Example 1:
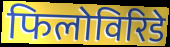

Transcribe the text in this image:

फिलोविरिडे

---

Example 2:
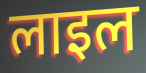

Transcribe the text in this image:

लाइल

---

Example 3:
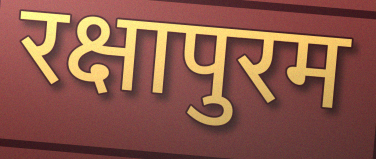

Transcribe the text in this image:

रक्षापुरम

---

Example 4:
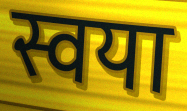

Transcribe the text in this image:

स्वया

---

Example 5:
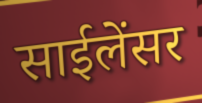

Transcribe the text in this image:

साईलेंसर